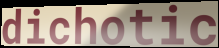
dichotic